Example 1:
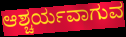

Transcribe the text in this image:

ಆಶ್ಚರ್ಯವಾಗುವ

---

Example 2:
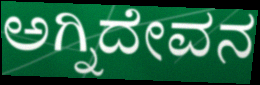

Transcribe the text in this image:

ಅಗ್ನಿದೇವನ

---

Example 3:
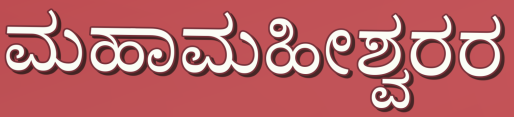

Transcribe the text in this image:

ಮಹಾಮಹೀಶ್ವರರ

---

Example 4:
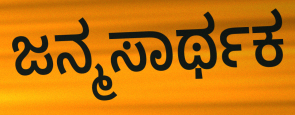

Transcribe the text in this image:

ಜನ್ಮಸಾರ್ಥಕ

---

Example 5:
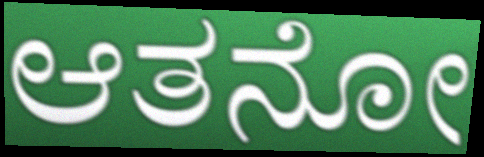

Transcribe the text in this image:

ಆತನೋ